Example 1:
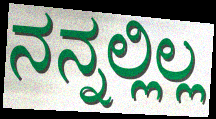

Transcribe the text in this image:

ನನ್ನಲ್ಲಿಲ್ಲ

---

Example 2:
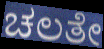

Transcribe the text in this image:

ಚಲತೇ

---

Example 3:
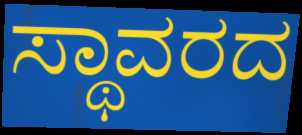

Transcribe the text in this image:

ಸ್ಥಾವರದ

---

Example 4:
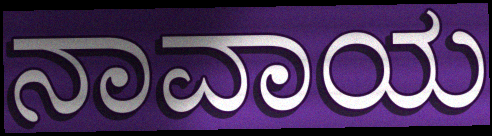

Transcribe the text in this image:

ನಾವಾಯ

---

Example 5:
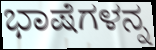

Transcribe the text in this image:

ಭಾಷೆಗಳನ್ನ